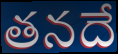
తనదే